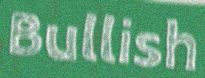
Bullish